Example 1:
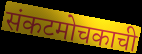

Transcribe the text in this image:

संकटमोचकाची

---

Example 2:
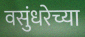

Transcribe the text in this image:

वसुंधरेच्या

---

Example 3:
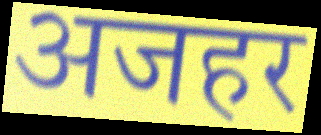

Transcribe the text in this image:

अजहर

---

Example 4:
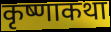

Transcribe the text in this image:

कृष्णाकथा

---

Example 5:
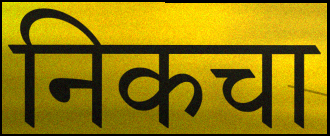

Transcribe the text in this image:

निकचा